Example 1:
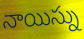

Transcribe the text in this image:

నాయిస్ను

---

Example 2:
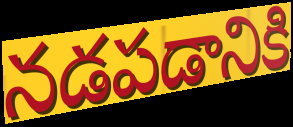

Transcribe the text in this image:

నడపడానికి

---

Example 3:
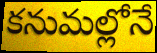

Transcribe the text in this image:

కనుమల్లోనే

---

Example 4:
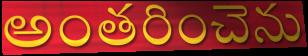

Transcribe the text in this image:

అంతరించెను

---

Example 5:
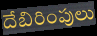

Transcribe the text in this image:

దేబిరింపులు